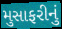
મુસાફરીનું